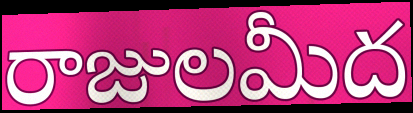
రాజులమీద